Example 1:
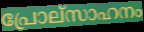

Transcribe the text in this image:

പ്രോല്സാഹനം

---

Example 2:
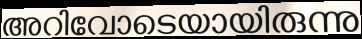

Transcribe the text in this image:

അറിവോടെയായിരുന്നു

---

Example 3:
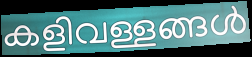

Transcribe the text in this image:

കളിവള്ളങ്ങൾ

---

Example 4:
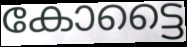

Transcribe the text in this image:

കോട്ടൈ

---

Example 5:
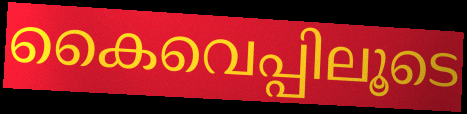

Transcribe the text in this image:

കൈവെപ്പിലൂടെ